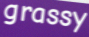
grassy